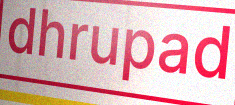
dhrupad